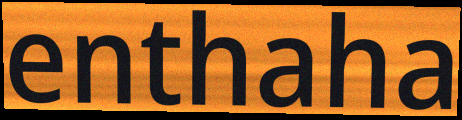
enthaha